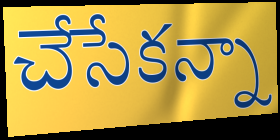
చేసేకన్నా